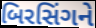
બિરસિંગને